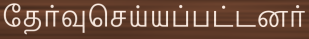
தேர்வுசெய்யப்பட்டனர்